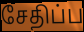
சேதிப்ப